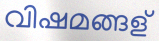
വിഷമങ്ങള്